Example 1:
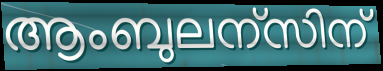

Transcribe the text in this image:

ആംബുലന്സിന്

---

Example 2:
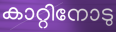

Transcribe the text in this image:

കാറ്റിനോടു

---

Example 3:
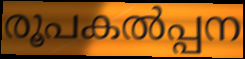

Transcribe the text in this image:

രൂപകൽപ്പന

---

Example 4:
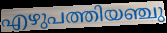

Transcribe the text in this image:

എഴുപത്തിയഞ്ചു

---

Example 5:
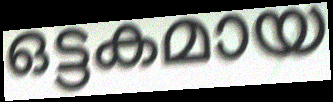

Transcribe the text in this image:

ഒട്ടകമായ